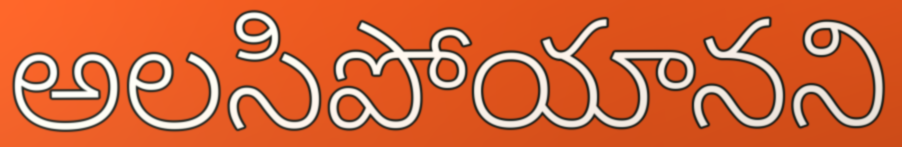
అలసిపోయానని